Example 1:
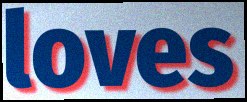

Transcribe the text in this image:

loves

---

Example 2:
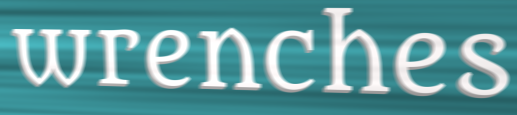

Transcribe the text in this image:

wrenches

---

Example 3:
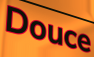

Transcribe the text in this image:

Douce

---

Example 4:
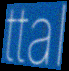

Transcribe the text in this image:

ttal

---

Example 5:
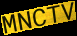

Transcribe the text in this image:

MNCTV